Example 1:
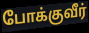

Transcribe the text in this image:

போக்குவீர்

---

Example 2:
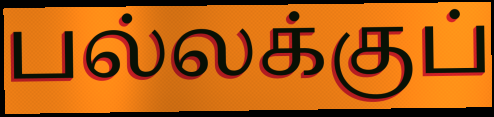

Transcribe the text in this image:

பல்லக்குப்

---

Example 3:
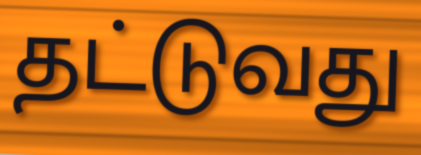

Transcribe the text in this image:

தட்டுவது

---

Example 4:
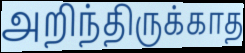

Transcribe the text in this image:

அறிந்திருக்காத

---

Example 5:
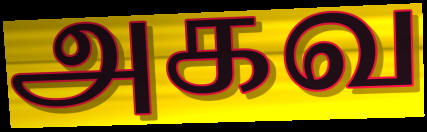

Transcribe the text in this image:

அகவ